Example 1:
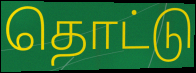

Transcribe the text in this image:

தொட்டு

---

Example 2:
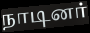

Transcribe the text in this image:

நாடினர்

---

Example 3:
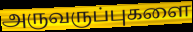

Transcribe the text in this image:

அருவருப்புகளை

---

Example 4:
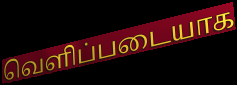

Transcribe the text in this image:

வெளிப்படையாக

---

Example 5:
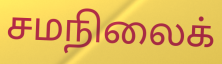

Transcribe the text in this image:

சமநிலைக்